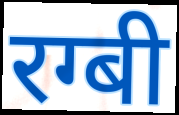
रग्बी